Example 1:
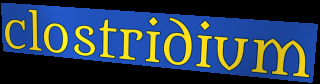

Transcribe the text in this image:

clostridium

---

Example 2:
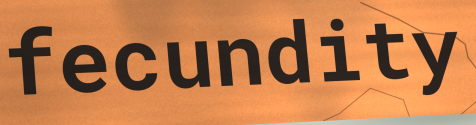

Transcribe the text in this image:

fecundity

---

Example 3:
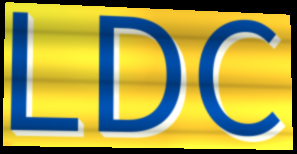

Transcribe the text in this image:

LDC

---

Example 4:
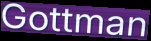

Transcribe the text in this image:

Gottman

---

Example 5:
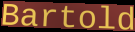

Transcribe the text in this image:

Bartold